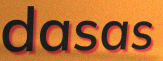
dasas